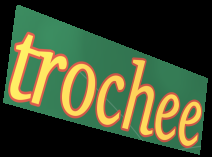
trochee